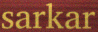
sarkar